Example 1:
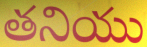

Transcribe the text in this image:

తనియు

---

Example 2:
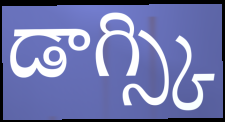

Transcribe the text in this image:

డాగ్స్కి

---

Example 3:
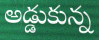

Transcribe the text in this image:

అడ్డుకున్న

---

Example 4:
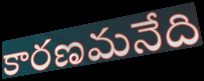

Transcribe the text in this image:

కారణమనేది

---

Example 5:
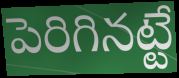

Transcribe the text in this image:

పెరిగినట్టే